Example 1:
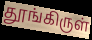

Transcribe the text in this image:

தூங்கிருள்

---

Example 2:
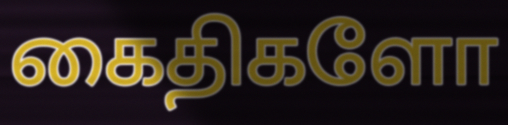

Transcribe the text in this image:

கைதிகளோ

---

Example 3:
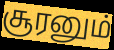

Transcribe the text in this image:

சூரனும்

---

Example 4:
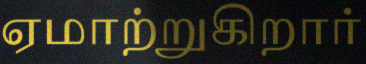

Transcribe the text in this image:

ஏமாற்றுகிறார்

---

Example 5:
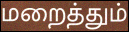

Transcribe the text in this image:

மறைத்தும்